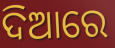
ଦିଆରେ